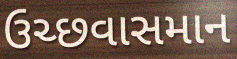
ઉચ્છવાસમાન